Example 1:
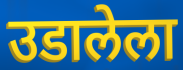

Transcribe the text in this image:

उडालेला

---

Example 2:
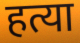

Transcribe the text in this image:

हत्या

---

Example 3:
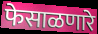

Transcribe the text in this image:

फेसाळणारे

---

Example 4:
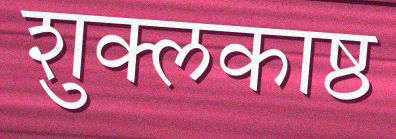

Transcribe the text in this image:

शुक्लकाष्ठ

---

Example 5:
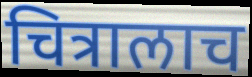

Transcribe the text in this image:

चित्रालाच